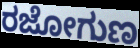
ರಜೋಗುಣ